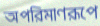
অপরিমাণরূপে